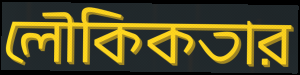
লৌকিকতার